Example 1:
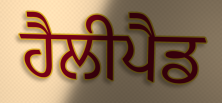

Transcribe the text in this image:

ਹੈਲੀਪੈਡ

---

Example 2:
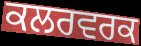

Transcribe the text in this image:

ਕਲਰਵਰਕ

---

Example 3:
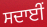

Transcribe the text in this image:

ਸਦਾਈਂ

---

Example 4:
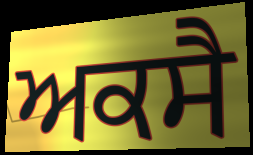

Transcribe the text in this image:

ਅਕਸੈ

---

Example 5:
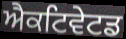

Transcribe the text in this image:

ਐਕਟਿਵੇਟਡ